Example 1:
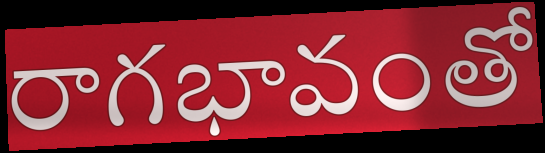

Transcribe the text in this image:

రాగభావంతో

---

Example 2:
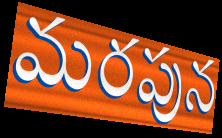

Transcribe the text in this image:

మరపున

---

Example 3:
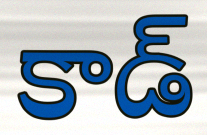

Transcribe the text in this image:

కాడ్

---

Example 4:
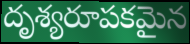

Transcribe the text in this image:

దృశ్యరూపకమైన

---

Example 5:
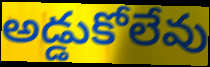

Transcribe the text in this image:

అడ్డుకోలేవు